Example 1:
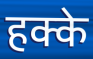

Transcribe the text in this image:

हक्के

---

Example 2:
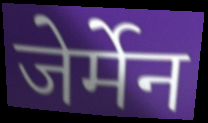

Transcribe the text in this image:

जेर्मेन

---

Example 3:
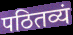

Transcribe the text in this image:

पठितव्यं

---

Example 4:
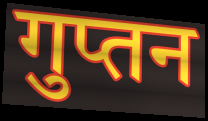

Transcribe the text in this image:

गुप्तन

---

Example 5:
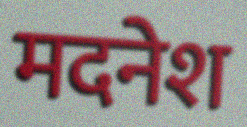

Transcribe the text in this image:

मदनेश